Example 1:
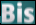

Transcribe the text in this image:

Bis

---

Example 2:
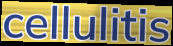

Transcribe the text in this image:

cellulitis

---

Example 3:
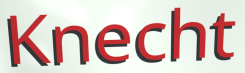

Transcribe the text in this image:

Knecht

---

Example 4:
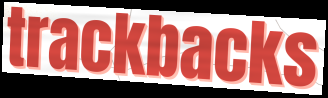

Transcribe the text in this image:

trackbacks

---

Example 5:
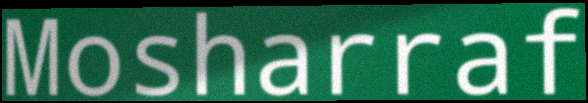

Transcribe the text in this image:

Mosharraf